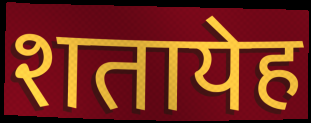
शतायेह